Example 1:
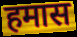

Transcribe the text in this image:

हमास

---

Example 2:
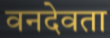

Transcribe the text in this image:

वनदेवता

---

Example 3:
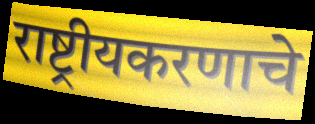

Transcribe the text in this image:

राष्ट्रीयकरणाचे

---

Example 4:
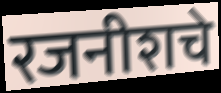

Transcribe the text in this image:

रजनीशचे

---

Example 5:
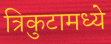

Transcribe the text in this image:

त्रिकुटामध्ये